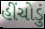
હીંચોડું